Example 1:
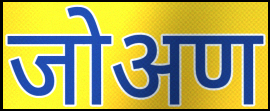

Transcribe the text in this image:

जोअण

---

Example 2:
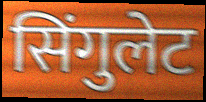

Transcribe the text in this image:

सिंगुलेट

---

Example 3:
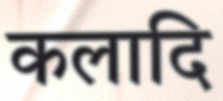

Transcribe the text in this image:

कलादि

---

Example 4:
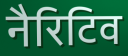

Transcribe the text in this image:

नैरिटिव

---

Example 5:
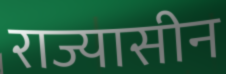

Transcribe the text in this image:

राज्यासीन